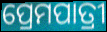
ପ୍ରେମପାତ୍ରୀ